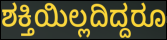
ಶಕ್ತಿಯಿಲ್ಲದಿದ್ದರೂ